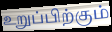
உறுப்பிற்கும்